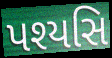
પશ્યસિ